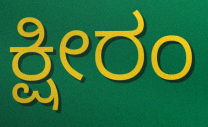
ಕ್ಷೀರಂ